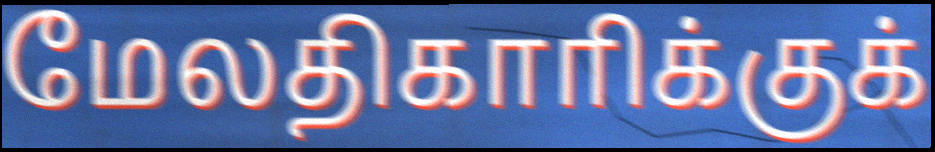
மேலதிகாரிக்குக்